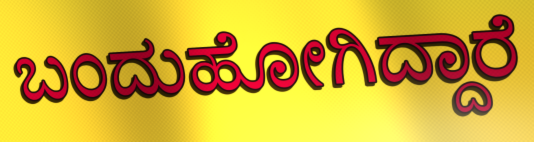
ಬಂದುಹೋಗಿದ್ದಾರೆ